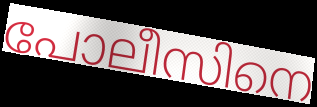
പോലീസിനെ